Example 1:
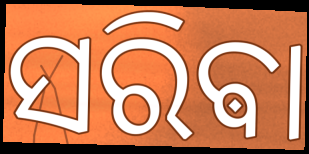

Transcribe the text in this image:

ସରିଵା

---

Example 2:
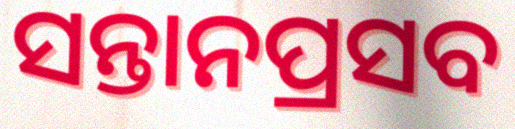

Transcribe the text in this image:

ସନ୍ତାନପ୍ରସବ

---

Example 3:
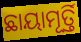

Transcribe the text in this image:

ଛାୟାମୂର୍ତ୍ତି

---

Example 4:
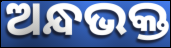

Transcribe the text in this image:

ଅନ୍ଧଭକ୍ତ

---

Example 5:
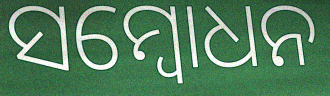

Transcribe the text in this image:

ସମ୍ବୋଧନ